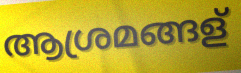
ആശ്രമങ്ങള്